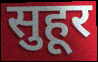
सुहूर